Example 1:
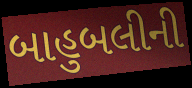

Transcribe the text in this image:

બાહુબલીની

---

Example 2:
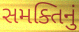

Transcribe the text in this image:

સમક્તિનું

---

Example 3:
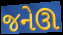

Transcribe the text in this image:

જનેઊ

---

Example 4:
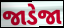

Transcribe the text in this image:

જાડેજા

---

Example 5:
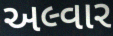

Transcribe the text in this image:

અલ્વાર